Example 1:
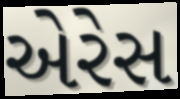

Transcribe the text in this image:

એરેસ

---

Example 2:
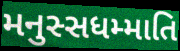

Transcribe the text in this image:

મનુસ્સધમ્માતિ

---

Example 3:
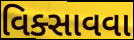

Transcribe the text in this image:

વિક્સાવવા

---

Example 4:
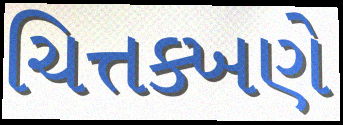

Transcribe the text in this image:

ચિત્તક્ખણે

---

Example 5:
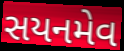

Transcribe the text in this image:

સયનમેવ